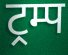
ट्रम्‍प